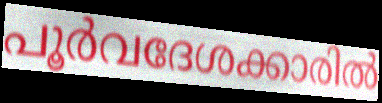
പൂർവദേശക്കാരിൽ